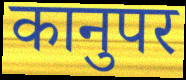
कानुपर